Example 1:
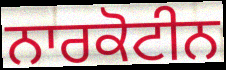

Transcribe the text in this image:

ਨਾਰਕੋਟੀਨ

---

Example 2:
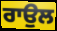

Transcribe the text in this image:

ਰਾਉਲ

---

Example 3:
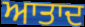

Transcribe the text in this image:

ਆਤਾਦ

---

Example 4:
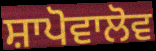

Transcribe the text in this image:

ਸ਼ਾਪੋਵਾਲੋਵ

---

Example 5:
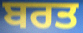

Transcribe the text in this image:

ਬਰਤ